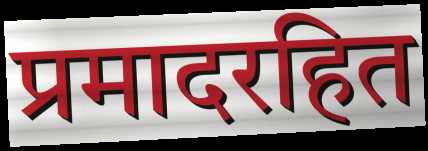
प्रमादरहित